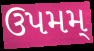
ઉપમમ્